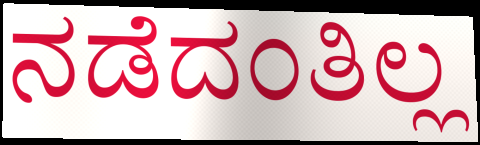
ನಡೆದಂತಿಲ್ಲ